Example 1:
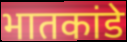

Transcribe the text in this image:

भातकांडे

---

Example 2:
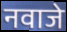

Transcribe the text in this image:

नवाजे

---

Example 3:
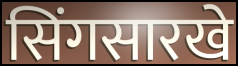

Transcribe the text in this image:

सिंगसारखे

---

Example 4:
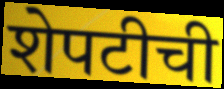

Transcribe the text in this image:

शेपटीची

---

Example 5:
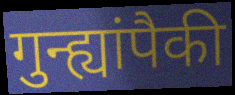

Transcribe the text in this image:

गुन्ह्यांपैकी